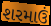
શરમાઉં